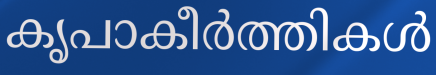
കൃപാകീർത്തികൾ